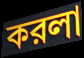
করলা